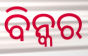
ବିନ୍କର